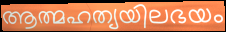
ആത്മഹത്യയിലഭയം